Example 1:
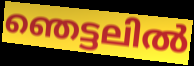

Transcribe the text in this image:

ഞെട്ടലിൽ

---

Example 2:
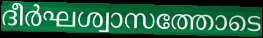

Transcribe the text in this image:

ദീർഘശ്വാസത്തോടെ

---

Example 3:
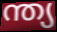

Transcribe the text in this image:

ന്ത്യ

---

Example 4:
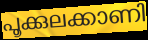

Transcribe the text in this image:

പൂക്കുലക്കാണി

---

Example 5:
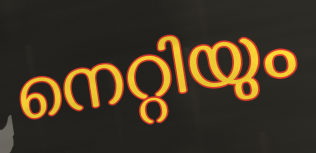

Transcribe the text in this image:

നെറ്റിയും